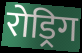
रोड्रिग